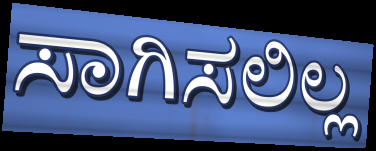
ಸಾಗಿಸಲಿಲ್ಲ